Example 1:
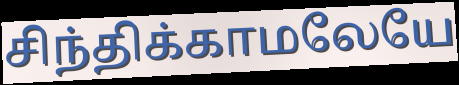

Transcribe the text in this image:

சிந்திக்காமலேயே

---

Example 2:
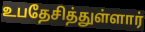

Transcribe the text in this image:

உபதேசித்துள்ளார்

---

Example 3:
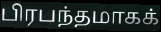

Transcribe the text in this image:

பிரபந்தமாகக்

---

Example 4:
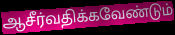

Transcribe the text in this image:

ஆசீர்வதிக்கவேண்டும்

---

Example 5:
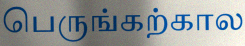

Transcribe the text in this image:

பெருங்கற்கால